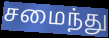
சமைந்து